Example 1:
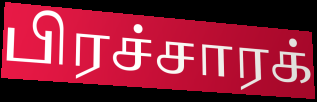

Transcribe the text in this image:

பிரச்சாரக்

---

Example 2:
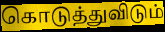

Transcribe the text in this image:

கொடுத்துவிடும்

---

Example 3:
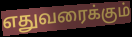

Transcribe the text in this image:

எதுவரைக்கும்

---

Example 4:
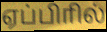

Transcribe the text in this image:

ஏப்பிரில்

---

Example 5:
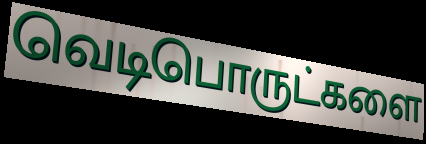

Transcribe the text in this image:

வெடிபொருட்களை